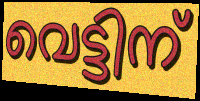
വെട്ടിന്